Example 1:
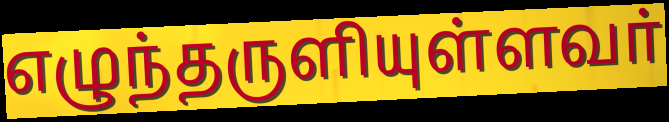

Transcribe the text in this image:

எழுந்தருளியுள்ளவர்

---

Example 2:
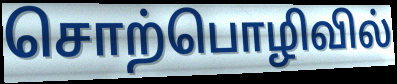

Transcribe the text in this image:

சொற்பொழிவில்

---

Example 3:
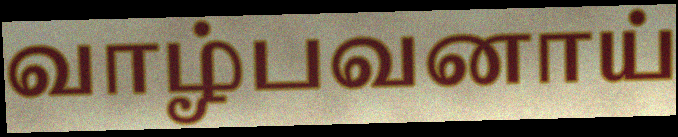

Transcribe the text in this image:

வாழ்பவனாய்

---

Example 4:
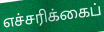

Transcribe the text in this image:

எச்சரிக்கைப்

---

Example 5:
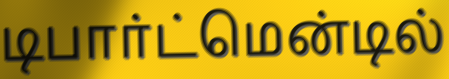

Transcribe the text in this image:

டிபார்ட்மென்டில்